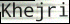
Khejri